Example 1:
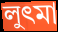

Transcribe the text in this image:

লুৎমা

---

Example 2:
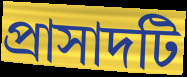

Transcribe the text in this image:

প্রাসাদটি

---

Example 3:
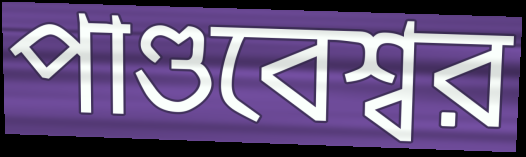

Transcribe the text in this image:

পাণ্ডবেশ্বর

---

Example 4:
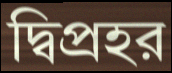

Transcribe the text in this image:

দ্বিপ্রহর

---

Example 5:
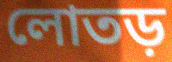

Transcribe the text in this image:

লোতড়